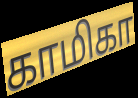
காமிகா